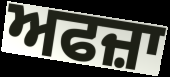
ਅਫਜ਼ਾ